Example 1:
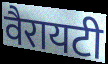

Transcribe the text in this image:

वैरायटी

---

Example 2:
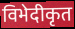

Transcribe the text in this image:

विभेदीकृत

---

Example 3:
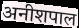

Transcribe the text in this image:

अनीशपाल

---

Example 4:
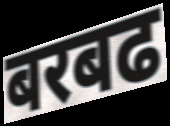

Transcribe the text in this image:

बरबढ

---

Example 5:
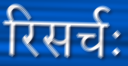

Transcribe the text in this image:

रिसर्चः